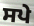
ਸਪੇ